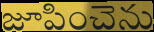
జూపించెను